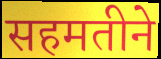
सहमतीने